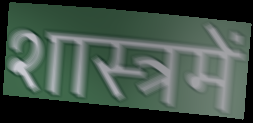
शास्त्रमें